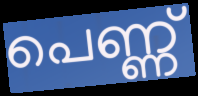
പെണ്ണ്